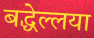
बद्धेल्लया